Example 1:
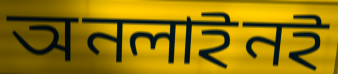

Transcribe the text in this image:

অনলাইনই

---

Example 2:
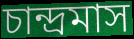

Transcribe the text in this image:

চান্দ্রমাস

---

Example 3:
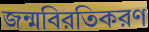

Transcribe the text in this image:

জন্মবিরতিকরণ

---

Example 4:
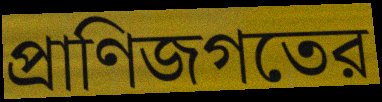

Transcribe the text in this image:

প্রাণিজগতের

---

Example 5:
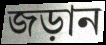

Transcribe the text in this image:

জড়ান